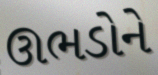
ઊભડોને